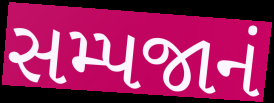
સમ્પજાનં